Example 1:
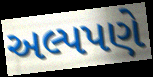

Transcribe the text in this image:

અલ્પપણે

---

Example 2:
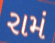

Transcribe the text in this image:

રામં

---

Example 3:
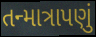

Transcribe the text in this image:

તન્માત્રાપણું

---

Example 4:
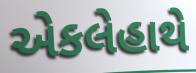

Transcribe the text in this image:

એકલેહાથે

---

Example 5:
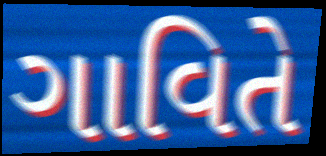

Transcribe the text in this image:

ગાવિતે